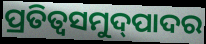
ପ୍ରତିତ୍ଵସମୁଦ୍‌ପାଦର